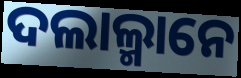
ଦଲାଲ୍ମାନେ